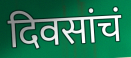
दिवसांचं